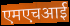
एमएचआई